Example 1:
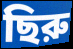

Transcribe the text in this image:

ছিরু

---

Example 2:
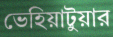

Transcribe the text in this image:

ভেহিয়াটুয়ার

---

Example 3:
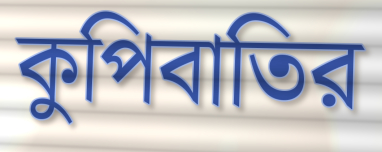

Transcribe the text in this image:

কুপিবাতির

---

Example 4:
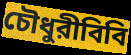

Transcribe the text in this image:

চৌধুরীবিবি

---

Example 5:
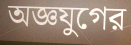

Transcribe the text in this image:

অজ্ঞযুগের